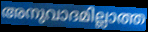
അനുവാദമില്ലാത്ത